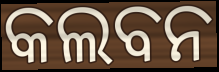
କଲବନ